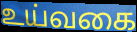
உய்வகை